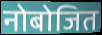
नोबोजित